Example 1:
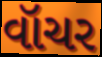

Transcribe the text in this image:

વૉચર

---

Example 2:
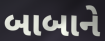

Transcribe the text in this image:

બાબાને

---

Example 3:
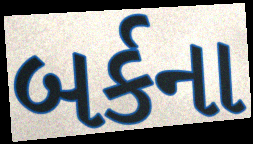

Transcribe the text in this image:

બર્કના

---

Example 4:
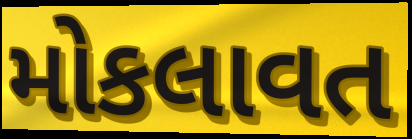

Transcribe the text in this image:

મોકલાવત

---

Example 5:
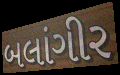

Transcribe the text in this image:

બલાંગીર